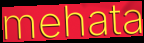
mehata